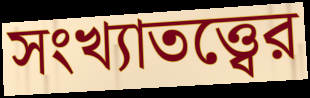
সংখ্যাতত্ত্বের